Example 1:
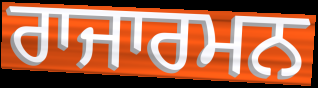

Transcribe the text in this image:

ਰਾਜਾਰਮਨ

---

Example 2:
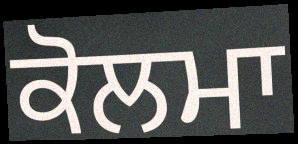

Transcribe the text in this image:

ਕੋਲਮਾ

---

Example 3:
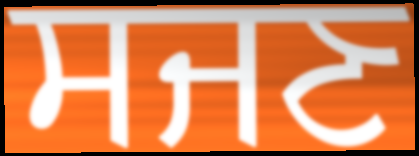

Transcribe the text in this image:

ਸਜਣ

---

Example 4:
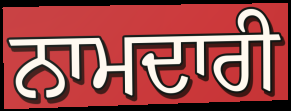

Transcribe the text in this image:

ਨਾਮਦਾਰੀ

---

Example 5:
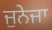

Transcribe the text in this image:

ਜੁਨੇਜਾ